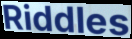
Riddles